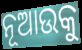
ନୂଆଉକୁ